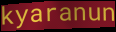
kyaranun